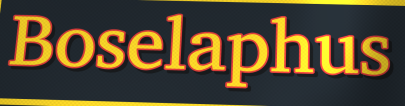
Boselaphus